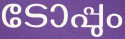
ടോപ്പും